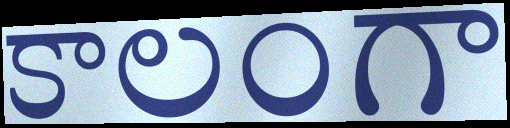
కాలంగా